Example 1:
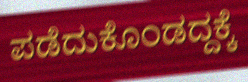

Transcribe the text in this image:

ಪಡೆದುಕೊಂಡದ್ದಕ್ಕೆ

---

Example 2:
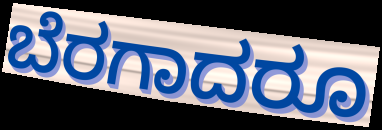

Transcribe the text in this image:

ಬೆರಗಾದರೂ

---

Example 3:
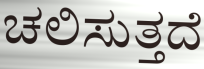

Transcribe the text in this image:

ಚಲಿಸುತ್ತದೆ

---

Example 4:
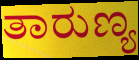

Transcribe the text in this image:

ತಾರುಣ್ಯ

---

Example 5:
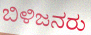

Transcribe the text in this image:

ಬಿಳಿಜನರು